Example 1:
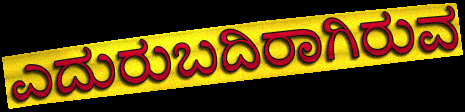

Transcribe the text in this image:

ಎದುರುಬದಿರಾಗಿರುವ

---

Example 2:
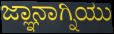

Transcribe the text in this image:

ಜ್ಞಾನಾಗ್ನಿಯು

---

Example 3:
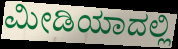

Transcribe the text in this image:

ಮೀಡಿಯಾದಲ್ಲಿ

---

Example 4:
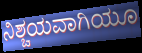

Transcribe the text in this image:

ನಿಶ್ಚಯವಾಗಿಯೂ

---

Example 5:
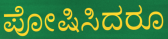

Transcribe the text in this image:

ಪೋಷಿಸಿದರೂ